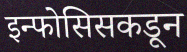
इन्फोसिसकडून